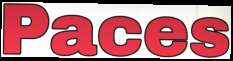
Paces